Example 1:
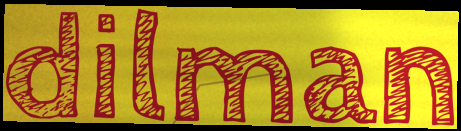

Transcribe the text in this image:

dilman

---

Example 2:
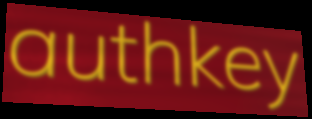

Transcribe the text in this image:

authkey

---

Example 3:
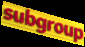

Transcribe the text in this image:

subgroup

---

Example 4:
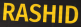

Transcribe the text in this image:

RASHID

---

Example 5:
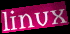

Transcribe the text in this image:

linux